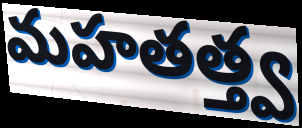
మహతత్త్వ